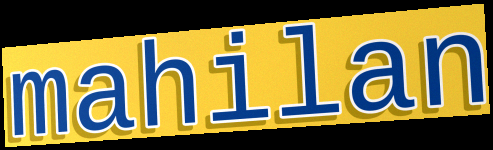
mahilan